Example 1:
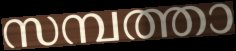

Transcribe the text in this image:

സമ്പത്താ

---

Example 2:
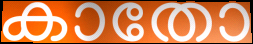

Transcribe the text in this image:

കാതോ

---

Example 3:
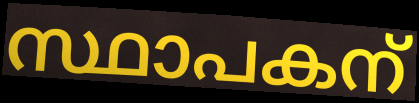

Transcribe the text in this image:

സ്ഥാപകന്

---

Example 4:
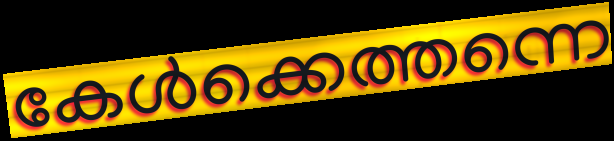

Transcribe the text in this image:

കേൾക്കെത്തന്നെ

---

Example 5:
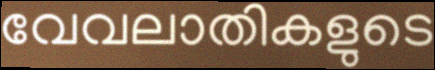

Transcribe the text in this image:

വേവലാതികളുടെ